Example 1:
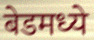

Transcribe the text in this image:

बेडमध्ये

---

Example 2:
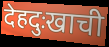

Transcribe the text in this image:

देहदुःखाची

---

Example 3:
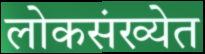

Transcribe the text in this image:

लोकसंख्येत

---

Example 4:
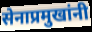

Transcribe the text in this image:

सेनाप्रमुखांनी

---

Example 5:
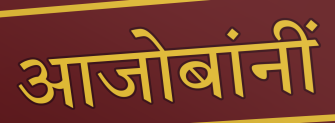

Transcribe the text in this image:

आजोबांनीं